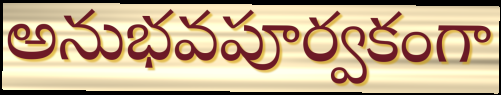
అనుభవపూర్వకంగా